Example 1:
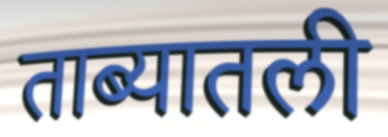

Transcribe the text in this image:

ताब्यातली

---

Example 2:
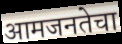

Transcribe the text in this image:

आमजनतेचा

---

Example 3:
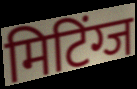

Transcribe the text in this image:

मिटिंग्ज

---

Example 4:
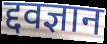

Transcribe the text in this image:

द्दवज्ञान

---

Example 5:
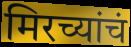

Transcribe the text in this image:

मिरच्यांचं